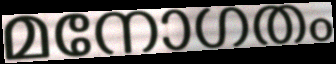
മനോഗതം